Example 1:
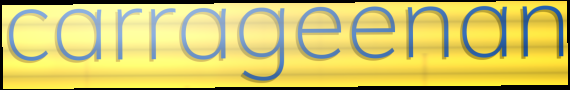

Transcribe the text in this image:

carrageenan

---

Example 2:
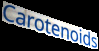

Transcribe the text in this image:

Carotenoids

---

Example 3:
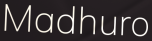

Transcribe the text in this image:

Madhuro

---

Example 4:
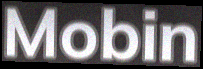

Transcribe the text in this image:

Mobin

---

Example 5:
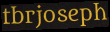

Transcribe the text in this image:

tbrjoseph